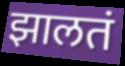
झालतं